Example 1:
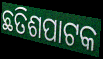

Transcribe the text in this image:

ଛତିଶପାଟକ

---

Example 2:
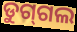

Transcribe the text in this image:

ଡୁଗ୍‌ଗଲ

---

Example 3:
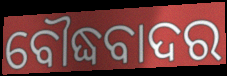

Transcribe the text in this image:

ବୌଦ୍ଧବାଦର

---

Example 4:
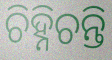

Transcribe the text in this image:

ଚିହ୍ନିଚନ୍ତି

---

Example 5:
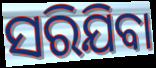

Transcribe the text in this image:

ସରିଯିବା